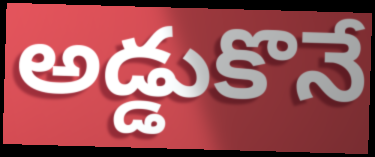
అడ్డుకొనే